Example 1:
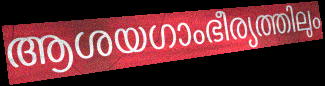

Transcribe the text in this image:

ആശയഗാംഭീര്യത്തിലും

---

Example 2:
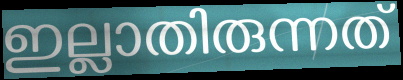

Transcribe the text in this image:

ഇല്ലാതിരുന്നത്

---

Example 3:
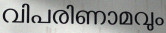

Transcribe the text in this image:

വിപരിണാമവും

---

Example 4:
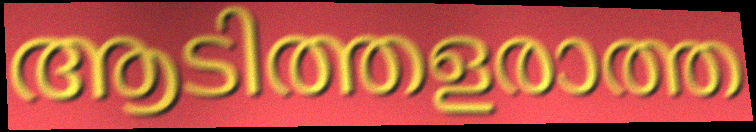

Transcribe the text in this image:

ആടിത്തളരാത്ത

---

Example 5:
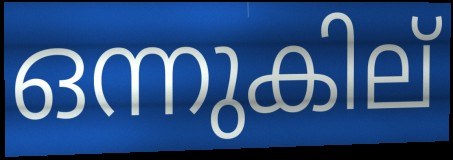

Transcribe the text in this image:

ഒന്നുകില്